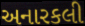
અનારકલી